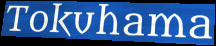
Tokuhama